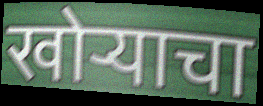
खोर्‍याचा